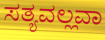
ಸತ್ಯವಲ್ಲವಾ